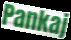
Pankaj